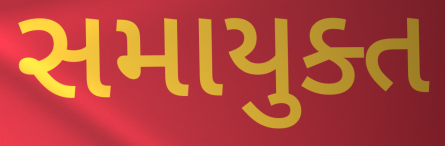
સમાયુક્ત